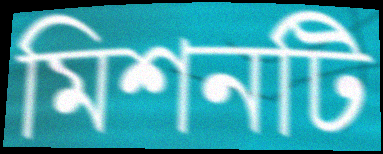
মিশনটি